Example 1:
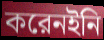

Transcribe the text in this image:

করেনইনি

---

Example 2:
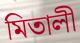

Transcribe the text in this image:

মিতালী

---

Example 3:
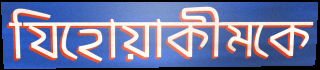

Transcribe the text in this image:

যিহোয়াকীমকে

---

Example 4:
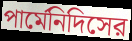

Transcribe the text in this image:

পার্মেনিদিসের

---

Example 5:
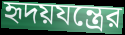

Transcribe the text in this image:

হৃদয়যন্ত্রের